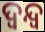
ଦ୍ବନ୍ଦ୍ବ